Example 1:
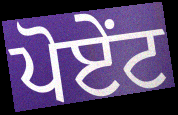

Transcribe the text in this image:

ਪੋਏਂਟ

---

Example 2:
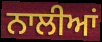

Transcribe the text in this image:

ਨਾਲੀਆਂ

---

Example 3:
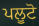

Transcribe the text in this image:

ਪਲੂਟੋ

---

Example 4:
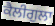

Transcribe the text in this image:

ਕੈਲੀਗੁਲਾ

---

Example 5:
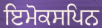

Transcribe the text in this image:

ਇਮੋਕਸਪਿਨ